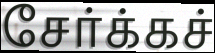
சேர்க்கச்